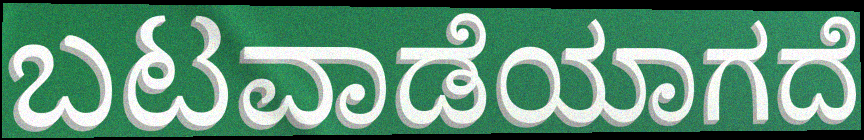
ಬಟವಾಡೆಯಾಗದೆ